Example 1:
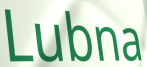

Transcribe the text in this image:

Lubna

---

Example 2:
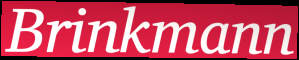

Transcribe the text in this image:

Brinkmann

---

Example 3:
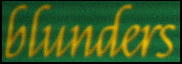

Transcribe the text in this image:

blunders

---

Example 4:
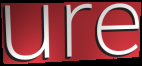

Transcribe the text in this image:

ure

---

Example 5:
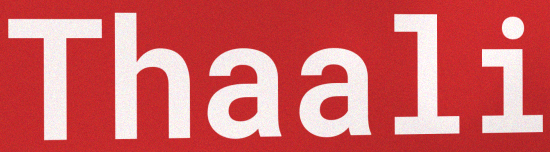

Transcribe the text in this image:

Thaali